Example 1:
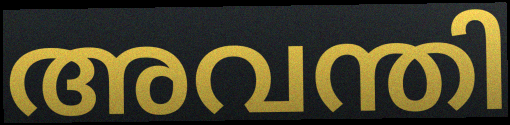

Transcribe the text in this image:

അവന്തി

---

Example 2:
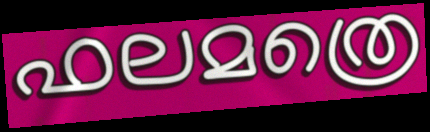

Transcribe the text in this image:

ഫലമത്രെ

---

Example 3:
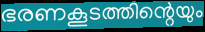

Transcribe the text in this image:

ഭരണകൂടത്തിന്റെയും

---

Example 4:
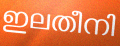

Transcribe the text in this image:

ഇലതീനി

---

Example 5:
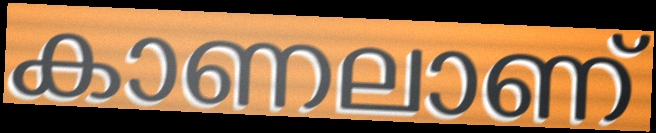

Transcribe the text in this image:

കാണലാണ്